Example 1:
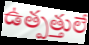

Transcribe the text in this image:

ఉత్పత్తులే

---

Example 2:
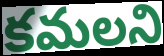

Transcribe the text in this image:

కమలని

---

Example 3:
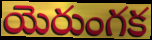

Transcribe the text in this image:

యెరుంగక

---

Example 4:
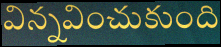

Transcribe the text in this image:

విన్నవించుకుంది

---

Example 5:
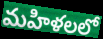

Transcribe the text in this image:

మహిళలలో